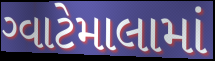
ગ્વાટેમાલામાં